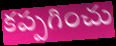
కప్పగించు